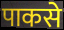
पाकसे